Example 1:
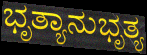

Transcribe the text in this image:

ಭೃತ್ಯಾನುಭೃತ್ಯ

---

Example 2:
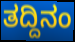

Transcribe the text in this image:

ತದ್ದಿನಂ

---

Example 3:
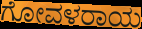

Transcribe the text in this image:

ಗೋವಳರಾಯ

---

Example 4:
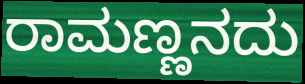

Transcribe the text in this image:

ರಾಮಣ್ಣನದು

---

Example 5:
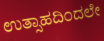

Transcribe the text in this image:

ಉತ್ಸಾಹದಿಂದಲೇ